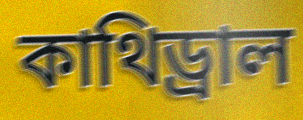
কাথিড্রাল